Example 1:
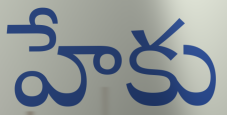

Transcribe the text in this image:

హేకు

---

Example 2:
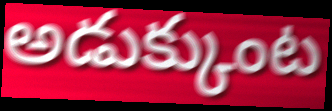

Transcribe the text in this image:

అడుక్కుంట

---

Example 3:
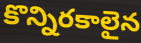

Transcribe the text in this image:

కొన్నిరకాలైన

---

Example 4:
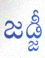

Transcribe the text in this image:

జడ్జీ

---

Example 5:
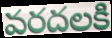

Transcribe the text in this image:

వరదలకి